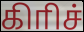
கிரிச்